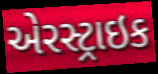
એરસ્ટ્રાઇક